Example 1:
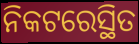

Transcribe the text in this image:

ନିକଟରେସ୍ଥିତ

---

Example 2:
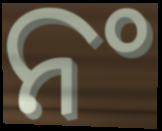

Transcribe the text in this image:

ନଂ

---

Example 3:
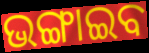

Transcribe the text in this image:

ଭଙ୍ଗାଇବ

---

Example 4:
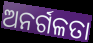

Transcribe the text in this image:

ଅନର୍ଗଳତା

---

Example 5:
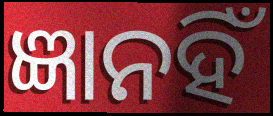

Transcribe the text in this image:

ଜ୍ଞାନହିଁ